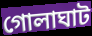
গোলাঘাট